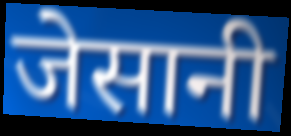
जेसानी